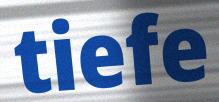
tiefe